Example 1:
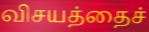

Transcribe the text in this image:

விசயத்தைச்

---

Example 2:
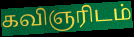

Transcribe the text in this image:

கவிஞரிடம்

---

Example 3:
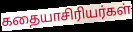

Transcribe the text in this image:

கதையாசிரியர்கள்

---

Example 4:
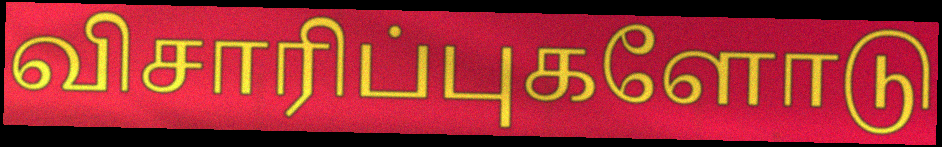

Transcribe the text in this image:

விசாரிப்புகளோடு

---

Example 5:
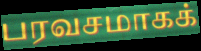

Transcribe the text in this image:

பரவசமாகக்